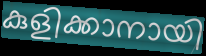
കുളിക്കാനായി